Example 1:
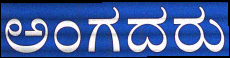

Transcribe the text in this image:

ಅಂಗದರು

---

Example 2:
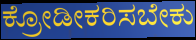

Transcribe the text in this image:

ಕ್ರೋಡೀಕರಿಸಬೇಕು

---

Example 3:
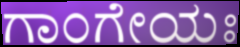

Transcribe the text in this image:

ಗಾಂಗೇಯಃ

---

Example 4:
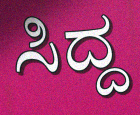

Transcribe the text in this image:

ಸಿದ್ದ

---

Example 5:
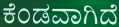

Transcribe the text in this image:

ಕೆಂಡವಾಗಿದೆ